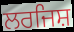
ਲਰਜਿਸ਼